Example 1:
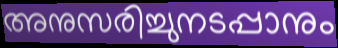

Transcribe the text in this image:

അനുസരിച്ചുനടപ്പാനും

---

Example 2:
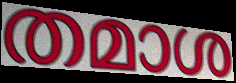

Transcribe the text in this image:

തമാശ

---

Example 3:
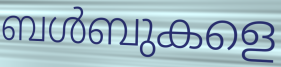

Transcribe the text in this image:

ബൾബുകളെ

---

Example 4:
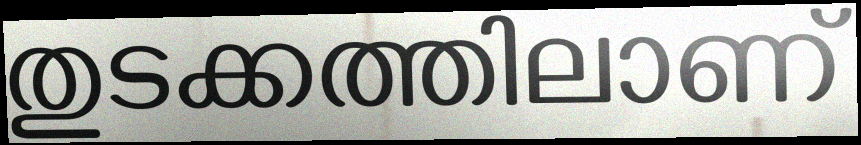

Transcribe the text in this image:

തുടക്കത്തിലാണ്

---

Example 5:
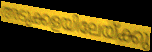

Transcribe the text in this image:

അടുക്കളയിലേയ്ക്കു